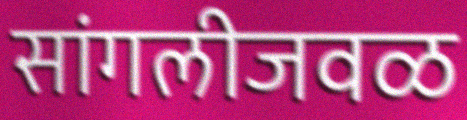
सांगलीजवळ